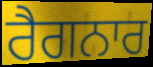
ਰੈਗਨਾਰ